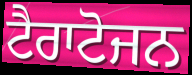
ਟੈਰਾਟੋਜਨ